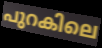
പുറകിലെ